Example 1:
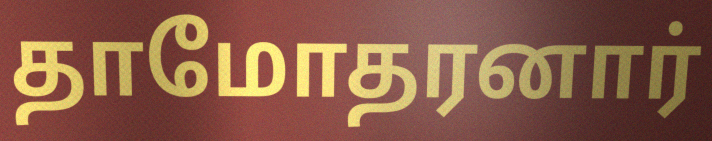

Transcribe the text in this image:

தாமோதரனார்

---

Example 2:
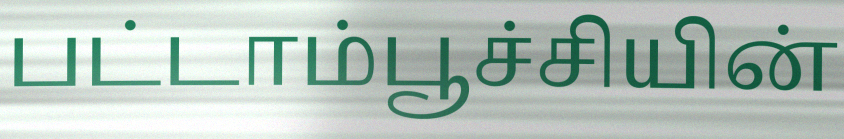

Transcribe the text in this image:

பட்டாம்பூச்சியின்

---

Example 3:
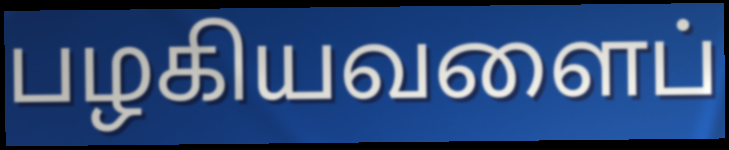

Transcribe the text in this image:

பழகியவளைப்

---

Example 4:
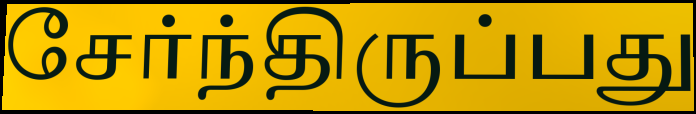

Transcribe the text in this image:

சேர்ந்திருப்பது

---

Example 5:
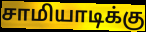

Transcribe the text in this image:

சாமியாடிக்கு